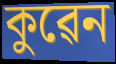
কুৱেন